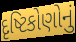
દૃષ્ટિકોણોનું